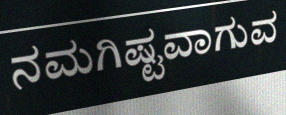
ನಮಗಿಷ್ಟವಾಗುವ